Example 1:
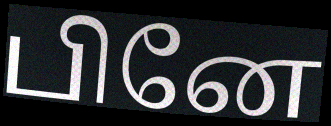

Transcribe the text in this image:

பினே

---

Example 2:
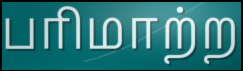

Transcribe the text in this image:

பரிமாற்ற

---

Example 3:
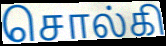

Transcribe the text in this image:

சொல்கி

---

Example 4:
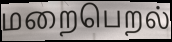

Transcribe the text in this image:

மறைபெறல்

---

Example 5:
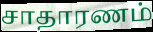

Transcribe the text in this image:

சாதாரணம்